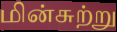
மின்சுற்று